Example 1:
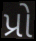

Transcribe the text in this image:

પ્રો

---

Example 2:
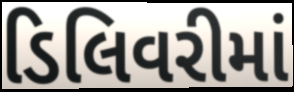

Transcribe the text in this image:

ડિલિવરીમાં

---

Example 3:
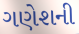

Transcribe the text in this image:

ગણેશની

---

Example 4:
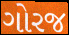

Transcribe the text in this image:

ગોરજ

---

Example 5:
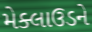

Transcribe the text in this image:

મેક્લાઉડને